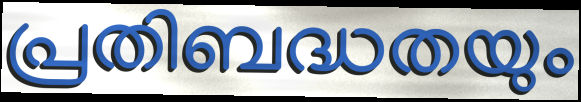
പ്രതിബദ്ധതയും